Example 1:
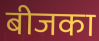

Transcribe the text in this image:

बीजका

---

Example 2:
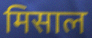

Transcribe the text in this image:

मिसाल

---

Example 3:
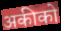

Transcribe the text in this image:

अकीको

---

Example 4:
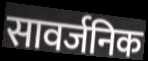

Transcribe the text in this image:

सावर्जनिक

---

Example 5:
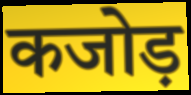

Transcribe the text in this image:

कजोड़